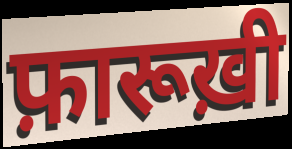
फ़ारूख़ी